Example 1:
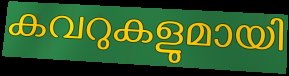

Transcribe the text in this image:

കവറുകളുമായി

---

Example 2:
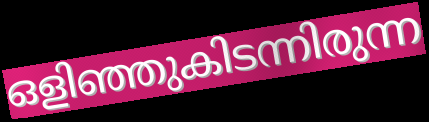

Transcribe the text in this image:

ഒളിഞ്ഞുകിടന്നിരുന്ന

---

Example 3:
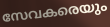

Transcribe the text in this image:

സേവകരെയും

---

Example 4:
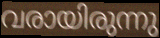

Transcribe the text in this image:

വരായിരുന്നു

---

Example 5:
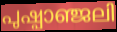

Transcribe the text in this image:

പുഷ്പാഞ്ജലി